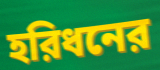
হরিধনের